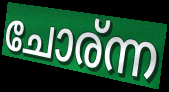
ചോര്ന്ന